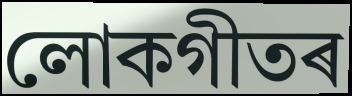
লোকগীতৰ